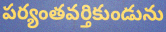
పర్యంతవర్తికుండును